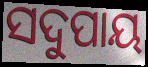
ସଦୁପାୟ